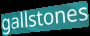
gallstones